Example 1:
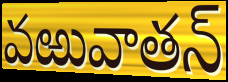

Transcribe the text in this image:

వఱువాతన్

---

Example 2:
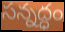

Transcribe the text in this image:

సన్నద్ధం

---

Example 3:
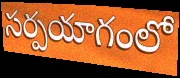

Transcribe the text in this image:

సర్పయాగంలో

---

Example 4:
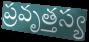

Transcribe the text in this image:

ప్రవృత్తస్య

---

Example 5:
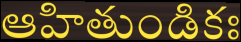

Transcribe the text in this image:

ఆహితుండికః